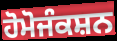
ਹੋਮੋਜੰਕਸ਼ਨ